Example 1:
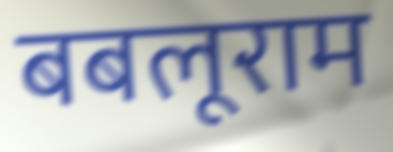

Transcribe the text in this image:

बबलूराम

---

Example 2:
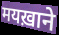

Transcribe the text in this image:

मयख़ाने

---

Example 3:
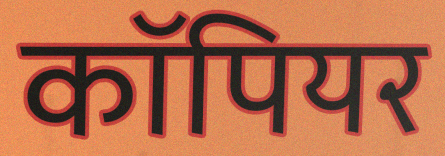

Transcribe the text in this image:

कॉपियर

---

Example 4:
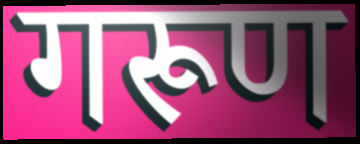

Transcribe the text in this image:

गरूण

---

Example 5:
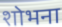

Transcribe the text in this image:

शोभना